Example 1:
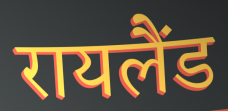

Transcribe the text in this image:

रायलैंड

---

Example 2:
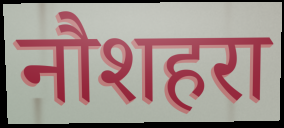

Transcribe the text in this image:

नौशहरा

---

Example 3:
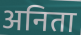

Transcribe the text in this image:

अनिता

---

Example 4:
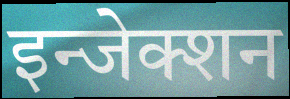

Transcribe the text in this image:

इन्जेक्शन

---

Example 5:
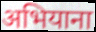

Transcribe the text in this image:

अभियाना